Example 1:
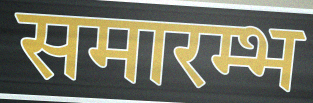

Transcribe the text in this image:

समारम्भ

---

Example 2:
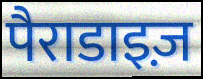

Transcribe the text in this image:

पैराडाइज़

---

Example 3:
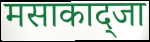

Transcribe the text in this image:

मसाकाद्जा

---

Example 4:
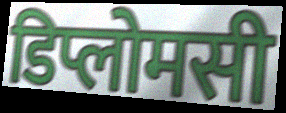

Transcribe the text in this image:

डिप्लोमसी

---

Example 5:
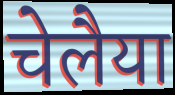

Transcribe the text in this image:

चेलैया